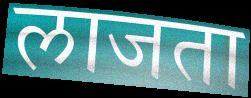
लाजता